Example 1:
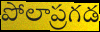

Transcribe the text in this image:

పోలాప్రగడ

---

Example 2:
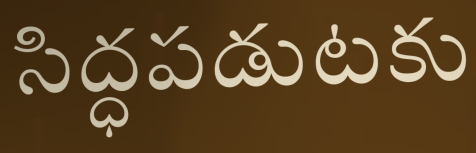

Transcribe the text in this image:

సిద్ధపడుటకు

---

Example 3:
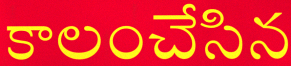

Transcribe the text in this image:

కాలంచేసిన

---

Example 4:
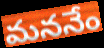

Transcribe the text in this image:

మననేం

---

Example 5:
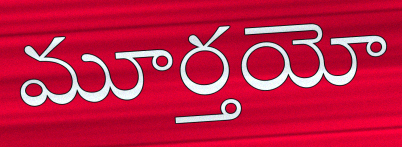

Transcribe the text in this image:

మూర్తయో